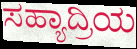
ಸಹ್ಯಾದ್ರಿಯ